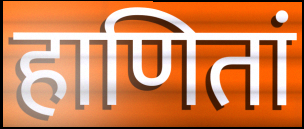
हाणितां